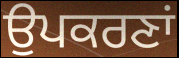
ਉਪਕਰਣਾਂ